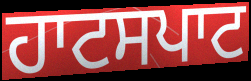
ਹਾਟਸਪਾਟ